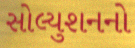
સોલ્યુશનનો